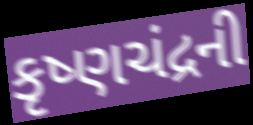
કૃષ્ણચંદ્રની